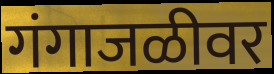
गंगाजळीवर